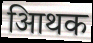
आिथक